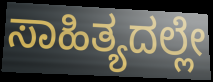
ಸಾಹಿತ್ಯದಲ್ಲೇ